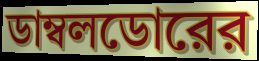
ডাম্বলডোরের